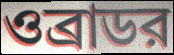
ওব্রাডর